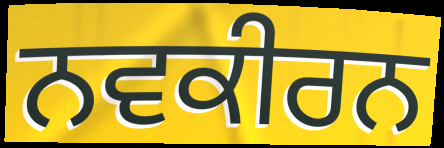
ਨਵਕੀਰਨ